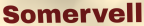
Somervell